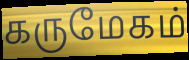
கருமேகம்